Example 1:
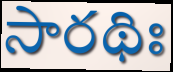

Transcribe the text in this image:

సారథిః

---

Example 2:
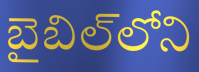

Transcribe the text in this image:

బైబిల్‌లోని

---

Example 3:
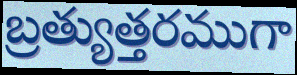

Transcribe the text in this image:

బ్రత్యుత్తరముగా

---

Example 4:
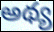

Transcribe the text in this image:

అథ్య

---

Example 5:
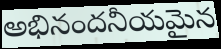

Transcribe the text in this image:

అభినందనీయమైన